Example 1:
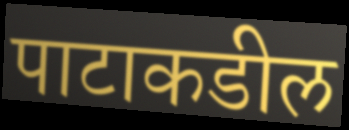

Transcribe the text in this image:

पाटाकडील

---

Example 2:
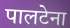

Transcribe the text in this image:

पालटेना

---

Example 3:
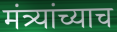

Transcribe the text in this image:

मंत्र्यांच्याच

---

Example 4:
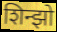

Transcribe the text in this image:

शिन्झो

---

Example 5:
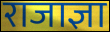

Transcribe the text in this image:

राजाज्ञा